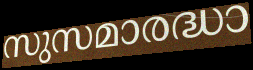
സുസമാരദ്ധാ